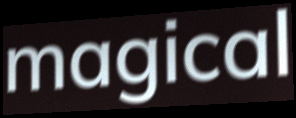
magical